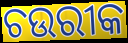
ଚଉରୀକ